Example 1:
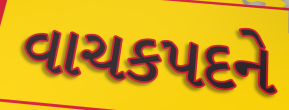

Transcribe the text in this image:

વાચકપદને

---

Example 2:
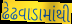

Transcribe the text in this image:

ઢેઢવાડામાંથી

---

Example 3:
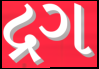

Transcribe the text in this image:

દ્રગ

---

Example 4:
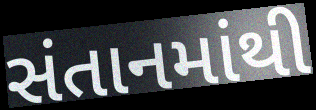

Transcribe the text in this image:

સંતાનમાંથી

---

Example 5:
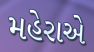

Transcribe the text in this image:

મહેરાએ